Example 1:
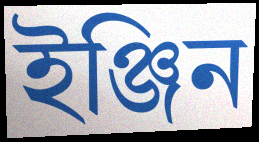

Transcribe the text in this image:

ইঞ্জিন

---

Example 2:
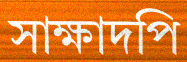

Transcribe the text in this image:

সাক্ষাদপি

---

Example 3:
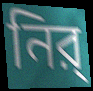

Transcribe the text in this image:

নির্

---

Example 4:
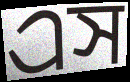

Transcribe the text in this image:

এস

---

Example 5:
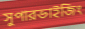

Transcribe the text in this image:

সুপারভাইজিং